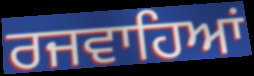
ਰਜਵਾਹਿਆਂ